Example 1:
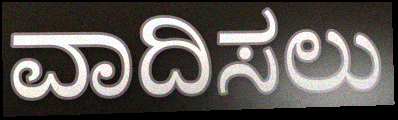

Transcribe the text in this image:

ವಾದಿಸಲು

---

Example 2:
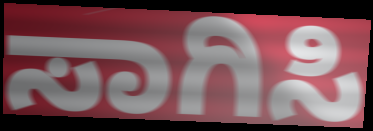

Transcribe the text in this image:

ಸಾಗಿಸಿ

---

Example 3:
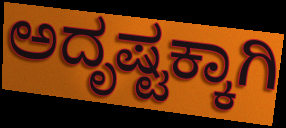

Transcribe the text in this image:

ಅದೃಷ್ಟಕ್ಕಾಗಿ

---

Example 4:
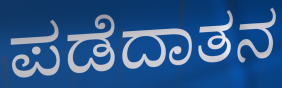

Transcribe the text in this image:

ಪಡೆದಾತನ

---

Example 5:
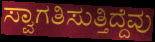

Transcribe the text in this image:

ಸ್ವಾಗತಿಸುತ್ತಿದ್ದೆವು